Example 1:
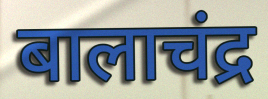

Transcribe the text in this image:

बालाचंद्र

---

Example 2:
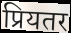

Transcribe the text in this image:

प्रियतर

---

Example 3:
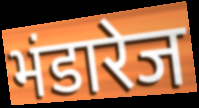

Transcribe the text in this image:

भंडारेज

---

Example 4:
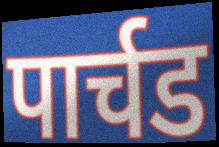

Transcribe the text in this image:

पार्चड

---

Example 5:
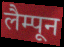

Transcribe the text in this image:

लैम्पून